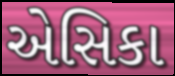
એસિકા